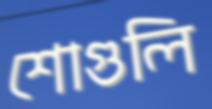
শোগুলি